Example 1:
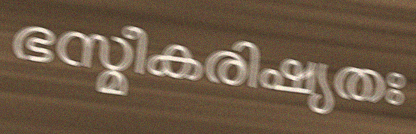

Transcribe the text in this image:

ഭസ്മീകരിഷ്യതഃ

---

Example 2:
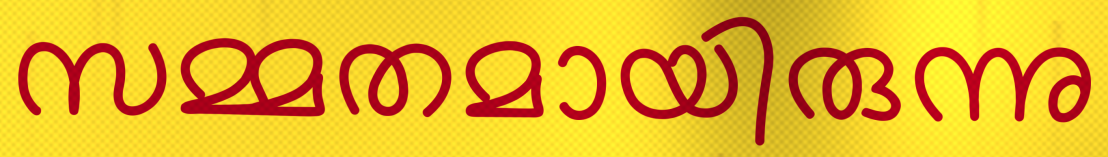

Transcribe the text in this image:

സമ്മതമായിരുന്നു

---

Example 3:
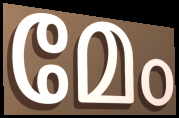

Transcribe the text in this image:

മേം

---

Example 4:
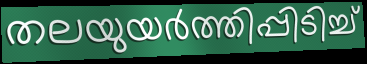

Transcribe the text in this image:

തലയുയർത്തിപ്പിടിച്ച്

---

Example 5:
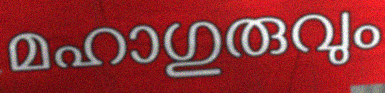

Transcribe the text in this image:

മഹാഗുരുവും